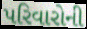
પરિવારોની